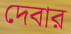
দেবার